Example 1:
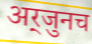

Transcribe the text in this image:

अर्जुनच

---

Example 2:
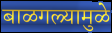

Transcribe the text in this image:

बाळगल्यामुळे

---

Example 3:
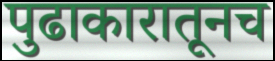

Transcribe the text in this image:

पुढाकारातूनच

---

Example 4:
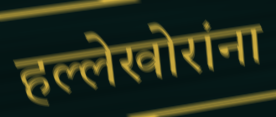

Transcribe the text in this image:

हल्लेखोरांना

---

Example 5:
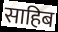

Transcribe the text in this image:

साहिब